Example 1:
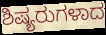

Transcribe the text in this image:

ಶಿಷ್ಯರುಗಳಾದ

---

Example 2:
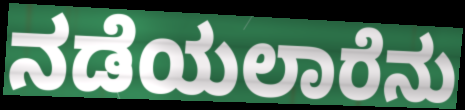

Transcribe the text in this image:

ನಡೆಯಲಾರೆನು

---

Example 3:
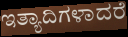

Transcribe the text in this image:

ಇತ್ಯಾದಿಗಳಾದರೆ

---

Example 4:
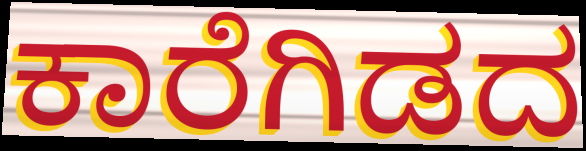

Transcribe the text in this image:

ಕಾರೆಗಿಡದ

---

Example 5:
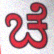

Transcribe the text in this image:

ಚೆ